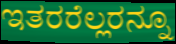
ಇತರರೆಲ್ಲರನ್ನೂ